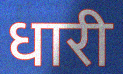
धारी